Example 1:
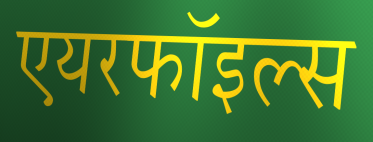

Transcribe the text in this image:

एयरफॉइल्स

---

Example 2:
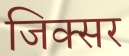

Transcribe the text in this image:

जिक्सर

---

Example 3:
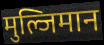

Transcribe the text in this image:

मुल्जिमान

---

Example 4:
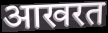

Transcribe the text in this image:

आखरत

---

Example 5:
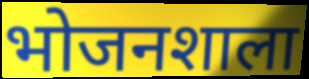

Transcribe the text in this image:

भोजनशाला